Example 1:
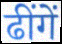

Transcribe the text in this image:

ढींगें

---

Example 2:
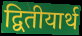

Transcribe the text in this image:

द्वितीयार्थ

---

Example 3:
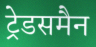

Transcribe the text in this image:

ट्रेडसमैन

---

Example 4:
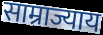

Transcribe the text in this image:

साम्राज्याय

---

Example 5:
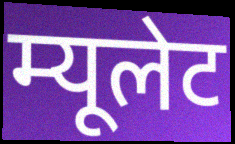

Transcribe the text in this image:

म्यूलेट